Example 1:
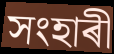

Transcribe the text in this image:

সংহাৰী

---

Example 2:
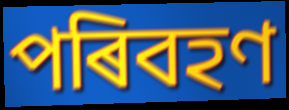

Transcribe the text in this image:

পৰিবহণ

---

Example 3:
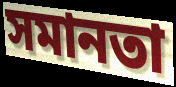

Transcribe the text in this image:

সমানতা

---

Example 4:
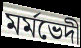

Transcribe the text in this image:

মৰ্মভেদী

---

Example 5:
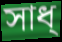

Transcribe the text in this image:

সাধ্